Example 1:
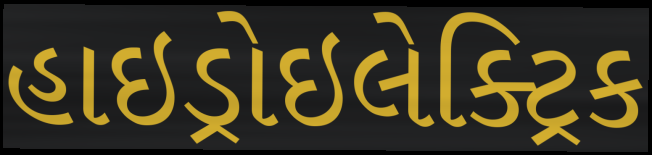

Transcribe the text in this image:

હાઇડ્રોઇલેક્ટ્રિક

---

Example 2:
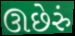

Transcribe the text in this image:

ઊછેરું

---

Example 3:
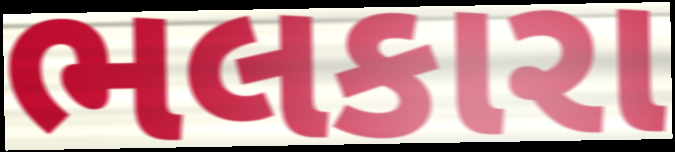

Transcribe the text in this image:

ભલકારા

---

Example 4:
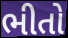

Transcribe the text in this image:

ભીતો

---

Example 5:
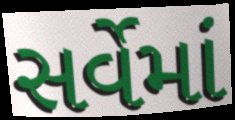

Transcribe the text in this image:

સર્વેમાં